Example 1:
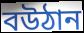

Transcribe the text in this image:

বউঠান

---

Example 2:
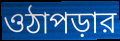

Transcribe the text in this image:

ওঠাপড়ার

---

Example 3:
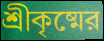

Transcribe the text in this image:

শ্রীকৃষ্মের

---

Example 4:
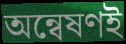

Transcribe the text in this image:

অন্বেষণই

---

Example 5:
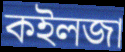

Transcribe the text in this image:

কইলজা